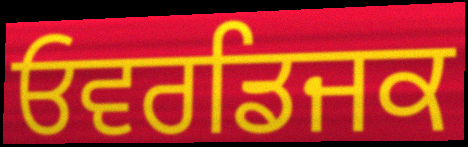
ਓਵਰਡਿਜਕ